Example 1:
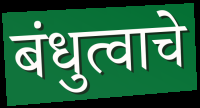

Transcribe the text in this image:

बंधुत्वाचे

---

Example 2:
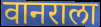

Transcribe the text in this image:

वानराला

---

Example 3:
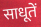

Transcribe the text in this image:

साधूतें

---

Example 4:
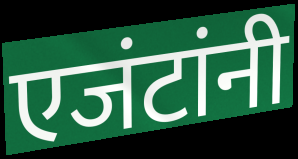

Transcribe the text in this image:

एजंटांनी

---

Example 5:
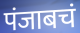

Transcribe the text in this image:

पंजाबचं